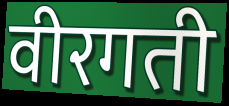
वीरगती